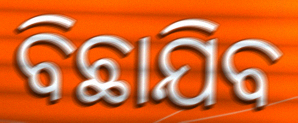
ବିଛାଯିବ